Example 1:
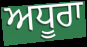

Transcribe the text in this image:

ਅਧੂਰਾ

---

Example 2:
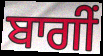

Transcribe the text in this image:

ਬਾਗੀਂ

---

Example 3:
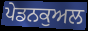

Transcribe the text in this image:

ਪੇਡਨਕੁਅਲ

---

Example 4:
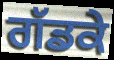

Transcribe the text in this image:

ਗੱਡਕੇ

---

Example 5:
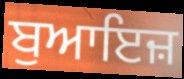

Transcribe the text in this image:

ਬੁਆਇਜ਼